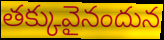
తక్కువైనందున